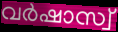
വർഷാസ്വ്